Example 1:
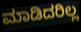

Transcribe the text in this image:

ಮಾಡಿದರಿಲ್ಲ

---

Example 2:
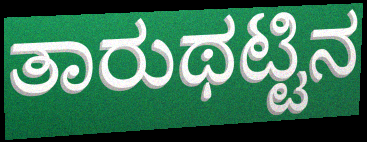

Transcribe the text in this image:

ತಾರುಥಟ್ಟಿನ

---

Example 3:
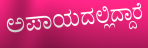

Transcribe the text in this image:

ಅಪಾಯದಲ್ಲಿದ್ದಾರೆ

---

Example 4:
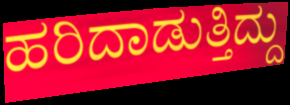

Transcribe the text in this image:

ಹರಿದಾಡುತ್ತಿದ್ದು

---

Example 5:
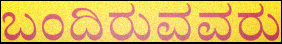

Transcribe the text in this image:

ಬಂದಿರುವವರು